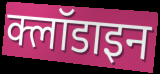
क्लॉडाइन